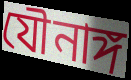
যৌনাঙ্গ